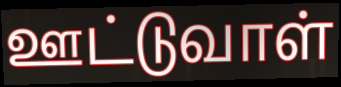
ஊட்டுவாள்